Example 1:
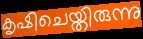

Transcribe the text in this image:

കൃഷിചെയ്തിരുന്നു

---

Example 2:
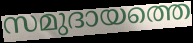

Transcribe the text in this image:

സമുദായത്തെ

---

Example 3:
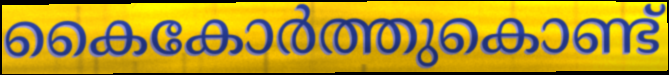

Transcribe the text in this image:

കൈകോർത്തുകൊണ്ട്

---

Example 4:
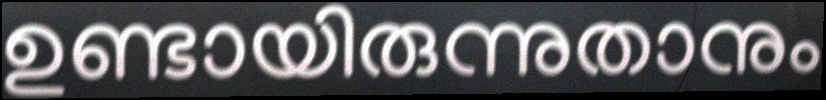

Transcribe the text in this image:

ഉണ്ടായിരുന്നുതാനും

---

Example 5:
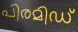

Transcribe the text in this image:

പിരമിഡ്